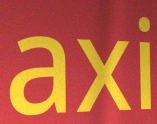
axi